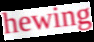
hewing